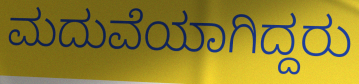
ಮದುವೆಯಾಗಿದ್ದರು